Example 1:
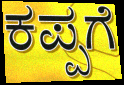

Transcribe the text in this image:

ಕಪ್ಪಗೆ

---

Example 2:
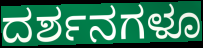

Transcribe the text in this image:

ದರ್ಶನಗಳೂ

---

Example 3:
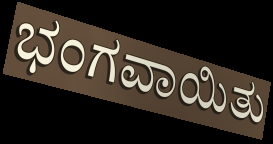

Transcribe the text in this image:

ಭಂಗವಾಯಿತು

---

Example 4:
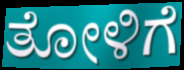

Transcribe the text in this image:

ತೋಳಿಗೆ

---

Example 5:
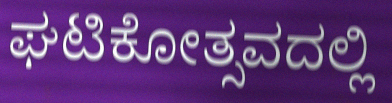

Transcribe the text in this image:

ಘಟಿಕೋತ್ಸವದಲ್ಲಿ